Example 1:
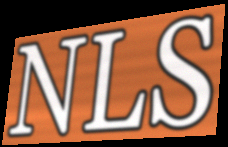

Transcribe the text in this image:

NLS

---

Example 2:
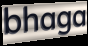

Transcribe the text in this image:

bhaga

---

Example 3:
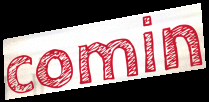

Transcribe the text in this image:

comin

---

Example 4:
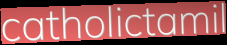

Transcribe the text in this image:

catholictamil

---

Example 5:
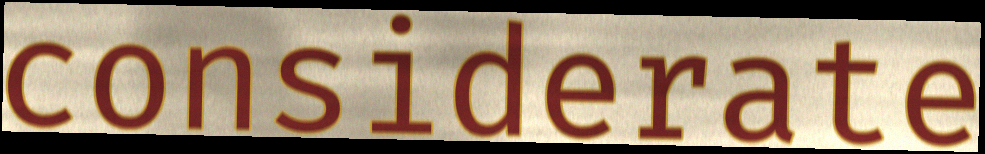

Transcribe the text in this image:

considerate